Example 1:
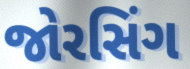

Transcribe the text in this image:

જોરસિંગ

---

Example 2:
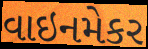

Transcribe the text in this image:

વાઇનમેકર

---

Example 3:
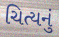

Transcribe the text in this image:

ચિત્યનું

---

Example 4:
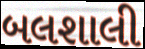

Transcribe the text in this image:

બલશાલી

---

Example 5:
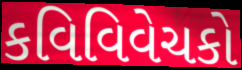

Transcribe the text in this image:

કવિવિવેચકો